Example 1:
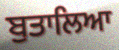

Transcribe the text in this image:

ਬੁਤਾਲਿਆ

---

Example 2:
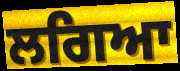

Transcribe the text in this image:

ਲਗਿਆ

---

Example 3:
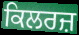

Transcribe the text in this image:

ਕਿਲਰਜ਼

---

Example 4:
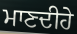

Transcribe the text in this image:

ਮਾਣਦੀਹੇ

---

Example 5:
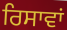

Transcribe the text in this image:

ਰਿਸਾਵਾਂ